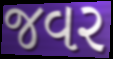
જવર